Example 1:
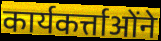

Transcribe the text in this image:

कार्यकर्त्ताओंने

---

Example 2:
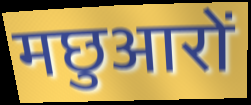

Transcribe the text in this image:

मछुआरों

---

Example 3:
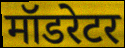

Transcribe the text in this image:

मॉडरेटर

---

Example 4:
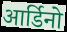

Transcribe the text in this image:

आर्डिनो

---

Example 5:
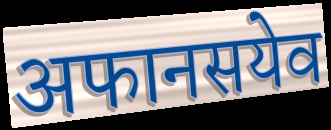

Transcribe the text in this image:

अफानसयेव